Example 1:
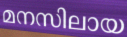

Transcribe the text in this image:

മനസിലായ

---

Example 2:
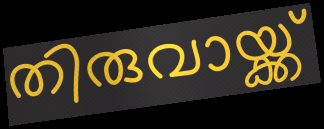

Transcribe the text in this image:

തിരുവായ്ക്ക്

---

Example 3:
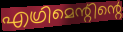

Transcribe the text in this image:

എഗ്രിമെന്റിന്റെ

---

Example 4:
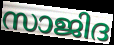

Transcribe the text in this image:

സാജിദ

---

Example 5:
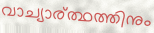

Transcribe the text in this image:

വാച്യാര്ത്ഥത്തിനും